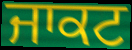
ਜਾਕਟ